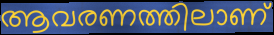
ആവരണത്തിലാണ്